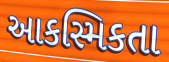
આકસ્મિકતા